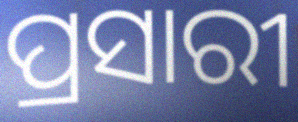
ପ୍ରସାରୀ